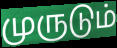
முருடும்